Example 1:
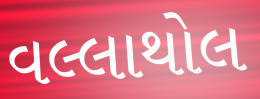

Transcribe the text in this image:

વલ્લાથોલ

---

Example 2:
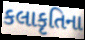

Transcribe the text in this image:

કલાકૃતિના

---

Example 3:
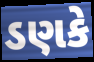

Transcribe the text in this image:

ડણકે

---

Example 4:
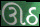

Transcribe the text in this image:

ઊઠ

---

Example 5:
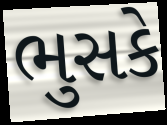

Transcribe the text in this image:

ભુસકે